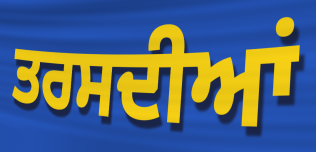
ਤਰਸਦੀਆਂ